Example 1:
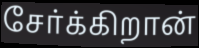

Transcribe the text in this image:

சேர்க்கிறான்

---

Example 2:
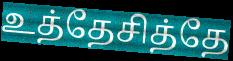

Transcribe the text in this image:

உத்தேசித்தே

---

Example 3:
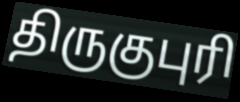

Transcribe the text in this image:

திருகுபுரி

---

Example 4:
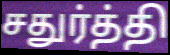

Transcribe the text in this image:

சதுர்த்தி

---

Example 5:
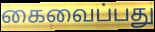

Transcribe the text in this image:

கைவைப்பது